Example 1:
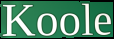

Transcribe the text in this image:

Koole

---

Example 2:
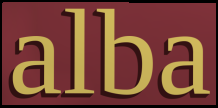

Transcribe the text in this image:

alba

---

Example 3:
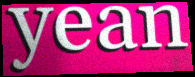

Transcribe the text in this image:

yean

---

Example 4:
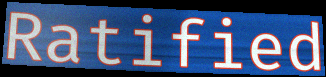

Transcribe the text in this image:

Ratified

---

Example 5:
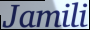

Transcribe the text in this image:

Jamili